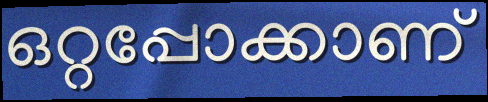
ഒറ്റപ്പോക്കാണ്